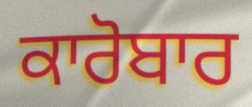
ਕਾਰੋਬਾਰ